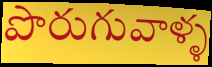
పొరుగువాళ్ళ